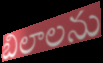
బిలాలను